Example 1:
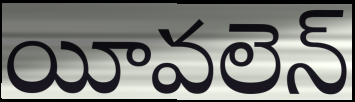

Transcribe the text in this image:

యీవలెన్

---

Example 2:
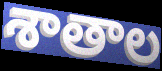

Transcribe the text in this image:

శాతాల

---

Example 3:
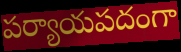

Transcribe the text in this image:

పర్యాయపదంగా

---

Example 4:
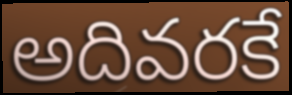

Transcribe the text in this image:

అదివరకే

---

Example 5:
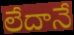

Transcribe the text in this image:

లేదానే